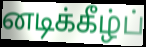
னடிக்கீழ்ப்